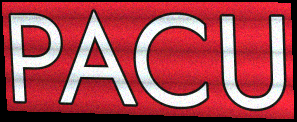
PACU